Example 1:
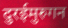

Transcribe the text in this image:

दुरईमुरुगन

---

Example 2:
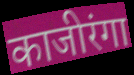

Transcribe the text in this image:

काजीरंगा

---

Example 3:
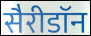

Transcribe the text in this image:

सैरीडॉन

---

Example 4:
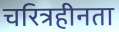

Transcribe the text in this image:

चरित्रहीनता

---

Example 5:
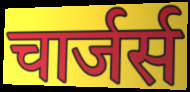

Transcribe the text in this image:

चार्जर्स